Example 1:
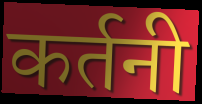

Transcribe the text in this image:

कर्तनी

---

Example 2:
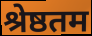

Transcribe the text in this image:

श्रेष्ठतम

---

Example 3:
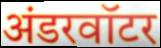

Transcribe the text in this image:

अंडरवॉटर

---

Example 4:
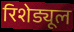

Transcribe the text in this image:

रिशेड्यूल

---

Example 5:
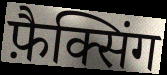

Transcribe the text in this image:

फ़ैक्सिंग